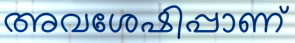
അവശേഷിപ്പാണ്